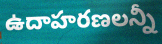
ఉదాహరణలన్నీ